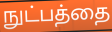
நுட்பத்தை